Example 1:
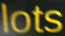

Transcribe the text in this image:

lots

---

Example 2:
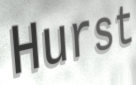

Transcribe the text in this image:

Hurst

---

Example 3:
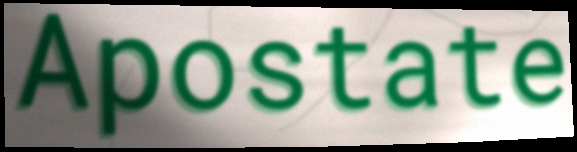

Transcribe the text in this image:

Apostate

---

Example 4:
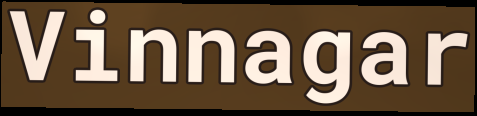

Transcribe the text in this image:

Vinnagar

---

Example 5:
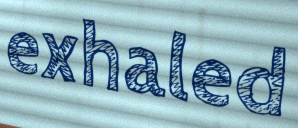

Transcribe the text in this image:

exhaled